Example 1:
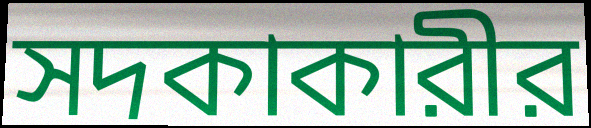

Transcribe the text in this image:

সদকাকারীর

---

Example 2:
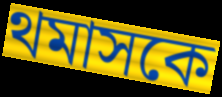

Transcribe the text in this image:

থমাসকে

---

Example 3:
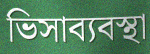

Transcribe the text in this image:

ভিসাব্যবস্থা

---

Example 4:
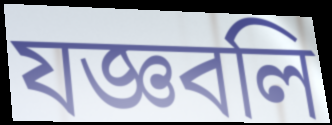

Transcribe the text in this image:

যজ্ঞবলি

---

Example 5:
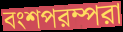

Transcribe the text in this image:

বংশপরম্পরা